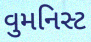
વુમનિસ્ટ